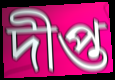
দীপ্ত